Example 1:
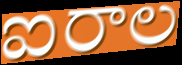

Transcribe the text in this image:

ఐరాల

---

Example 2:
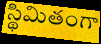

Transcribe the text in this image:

స్థిమితంగా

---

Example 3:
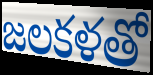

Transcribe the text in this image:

జలకళతో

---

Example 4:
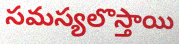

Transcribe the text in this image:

సమస్యలొస్తాయి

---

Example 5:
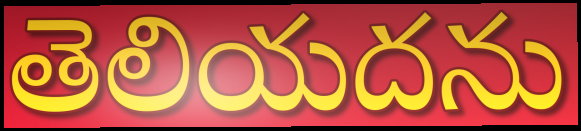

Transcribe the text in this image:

తెలియదను